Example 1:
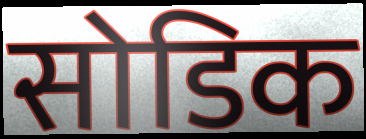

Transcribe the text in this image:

सोडिक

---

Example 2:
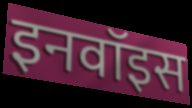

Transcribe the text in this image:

इनवॉइस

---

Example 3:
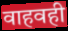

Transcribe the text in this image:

वाहवही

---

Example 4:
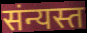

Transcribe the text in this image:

संन्यस्त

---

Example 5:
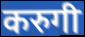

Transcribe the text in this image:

करुगी